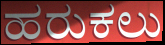
ಹರುಕಲು